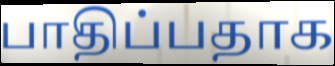
பாதிப்பதாக